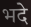
भदे